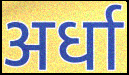
अर्धा